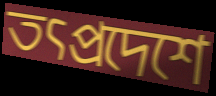
তৎপ্রদেশে